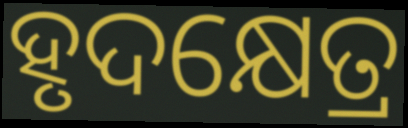
ହୃଦକ୍ଷେତ୍ର